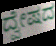
ದ್ವೇಷದ